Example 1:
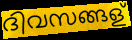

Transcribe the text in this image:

ദിവസങ്ങള്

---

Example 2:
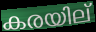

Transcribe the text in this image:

കരയില്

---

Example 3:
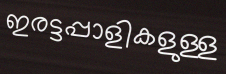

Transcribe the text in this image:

ഇരട്ടപ്പാളികളുള്ള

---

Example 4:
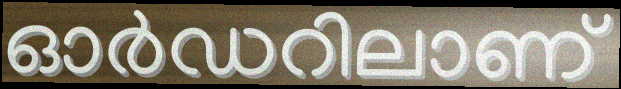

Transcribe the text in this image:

ഓർഡറിലാണ്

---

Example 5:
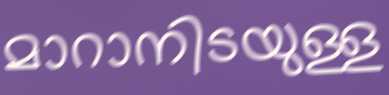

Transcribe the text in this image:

മാറാനിടയുള്ള